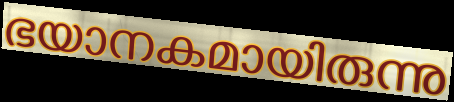
ഭയാനകമായിരുന്നു